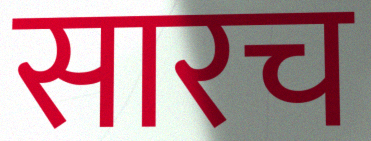
सारच